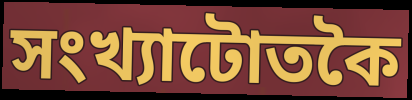
সংখ্যাটোতকৈ